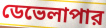
ডেভেলাপার